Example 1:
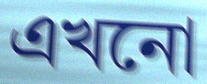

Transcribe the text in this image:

এখনো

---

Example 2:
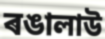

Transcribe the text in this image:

ৰঙালাউ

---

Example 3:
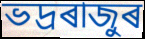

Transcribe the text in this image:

ভদ্ৰৰাজুৰ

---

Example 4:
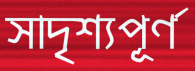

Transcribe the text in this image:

সাদৃশ্যপূৰ্ণ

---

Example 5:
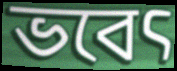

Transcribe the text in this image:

ভবেৎ